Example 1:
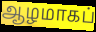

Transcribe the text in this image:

ஆழமாகப்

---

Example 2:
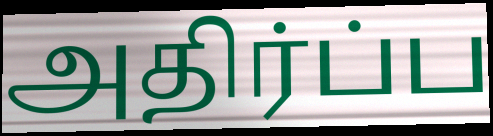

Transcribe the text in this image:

அதிர்ப்ப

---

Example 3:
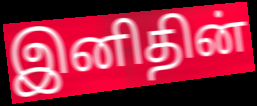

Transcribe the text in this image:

இனிதின்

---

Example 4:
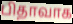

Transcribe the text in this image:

பிதாவாக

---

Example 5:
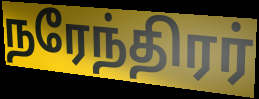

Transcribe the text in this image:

நரேந்திரர்